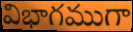
విభాగముగా